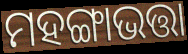
ମହଙ୍ଗାଭତ୍ତା